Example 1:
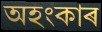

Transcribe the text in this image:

অহংকাৰ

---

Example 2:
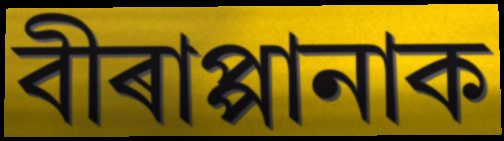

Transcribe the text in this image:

বীৰাপ্পানাক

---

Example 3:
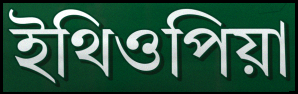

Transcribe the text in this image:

ইথিওপিয়া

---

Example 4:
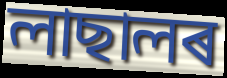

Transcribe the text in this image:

লাছালৰ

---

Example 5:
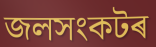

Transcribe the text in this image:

জলসংকটৰ